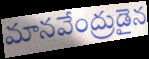
మానవేంద్రుడైన